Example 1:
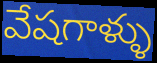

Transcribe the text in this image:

వేషగాళ్ళు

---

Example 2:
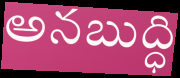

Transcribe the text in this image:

అనబుద్ధి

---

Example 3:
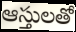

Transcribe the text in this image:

ఆస్తులతో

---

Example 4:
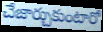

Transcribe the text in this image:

చేజార్చుకుంటారో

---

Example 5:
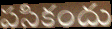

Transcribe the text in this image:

పసికందు